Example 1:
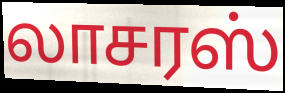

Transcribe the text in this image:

லாசரஸ்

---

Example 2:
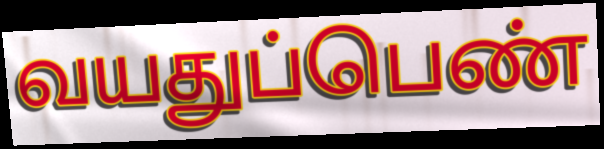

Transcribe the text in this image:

வயதுப்பெண்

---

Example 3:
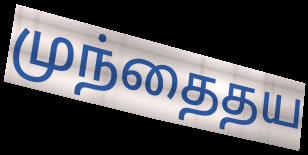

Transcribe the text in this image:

முந்தைதய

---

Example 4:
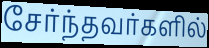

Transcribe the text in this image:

சேர்ந்தவர்களில்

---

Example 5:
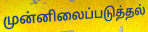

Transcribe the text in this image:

முன்னிலைப்படுத்தல்